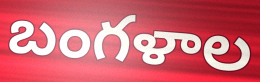
బంగళాల